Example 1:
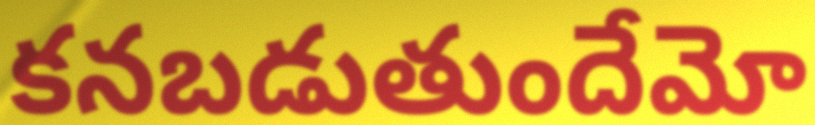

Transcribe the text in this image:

కనబడుతుందేమో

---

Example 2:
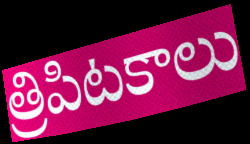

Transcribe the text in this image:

త్రిపిటకాలు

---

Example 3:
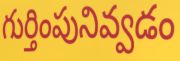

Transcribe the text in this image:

గుర్తింపునివ్వడం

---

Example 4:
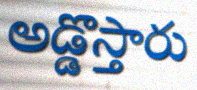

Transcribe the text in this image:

అడ్డొస్తారు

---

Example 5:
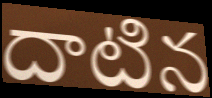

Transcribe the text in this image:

దాటిన